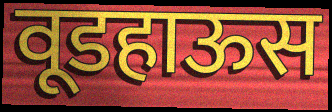
वूडहाऊस